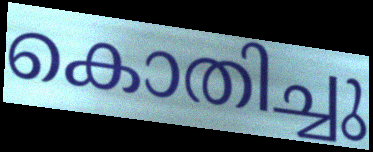
കൊതിച്ചു